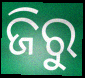
ଜିରୁ